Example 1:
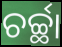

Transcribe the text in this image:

ଚର୍ଚ୍ଛା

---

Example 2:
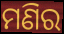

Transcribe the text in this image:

ମଣିର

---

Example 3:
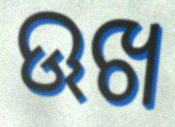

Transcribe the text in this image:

ଊଖ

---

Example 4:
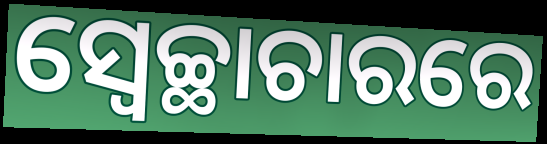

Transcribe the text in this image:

ସ୍ବେଚ୍ଛାଚାରରେ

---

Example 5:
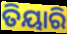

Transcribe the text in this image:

ତିୟାରି